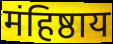
मंहिष्ठाय